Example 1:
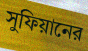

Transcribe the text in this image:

সুফিয়ানের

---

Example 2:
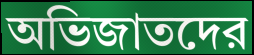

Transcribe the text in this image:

অভিজাতদের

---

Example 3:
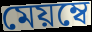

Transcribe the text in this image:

মেয়ম্বে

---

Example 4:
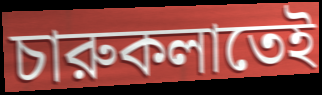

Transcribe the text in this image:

চারুকলাতেই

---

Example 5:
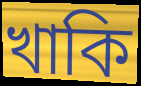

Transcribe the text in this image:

খাকি